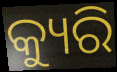
କ୍ୟୁରି